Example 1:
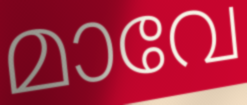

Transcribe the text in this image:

മാവേ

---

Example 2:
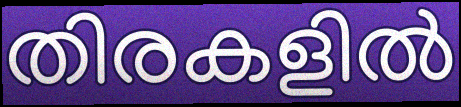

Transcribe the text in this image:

തിരകളിൽ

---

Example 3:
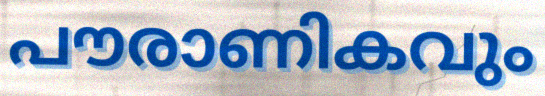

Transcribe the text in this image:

പൗരാണികവും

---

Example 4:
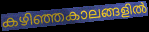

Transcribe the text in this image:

കഴിഞ്ഞകാലങ്ങളിൽ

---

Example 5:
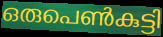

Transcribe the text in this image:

ഒരുപെൺകുട്ടി